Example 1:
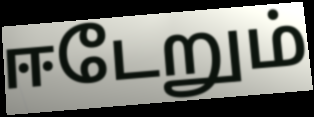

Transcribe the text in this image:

ஈடேறும்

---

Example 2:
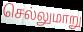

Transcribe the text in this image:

செல்லுமாறு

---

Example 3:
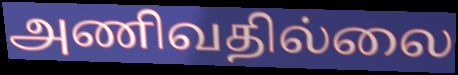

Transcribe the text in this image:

அணிவதில்லை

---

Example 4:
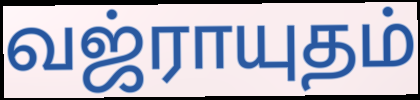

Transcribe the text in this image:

வஜ்ராயுதம்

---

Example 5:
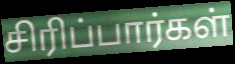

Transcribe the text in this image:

சிரிப்பார்கள்